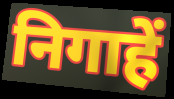
निगाहें